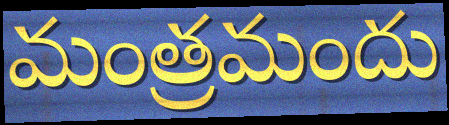
మంత్రమందు